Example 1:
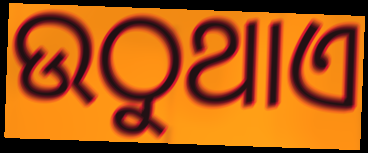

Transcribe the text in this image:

ଉଠୁଥାଏ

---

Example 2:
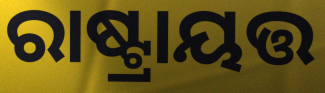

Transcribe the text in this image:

ରାଷ୍ଟ୍ରାୟତ୍ତ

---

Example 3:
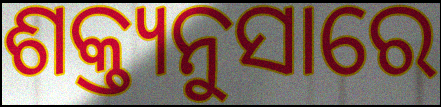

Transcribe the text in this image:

ଶକ୍ତ୍ୟନୁସାରେ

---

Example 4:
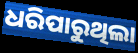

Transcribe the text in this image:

ଧରିପାରୁଥିଲା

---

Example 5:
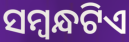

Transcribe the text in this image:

ସମ୍ୱନ୍ଧଟିଏ